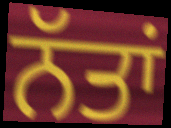
ਨੱਤਾਂ